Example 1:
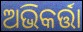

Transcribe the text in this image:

ଅଭିକର୍ତ୍ତା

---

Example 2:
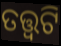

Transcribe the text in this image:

ତତ୍ତ୍ଵଟି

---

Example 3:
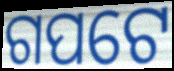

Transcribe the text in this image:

ଗପଟେ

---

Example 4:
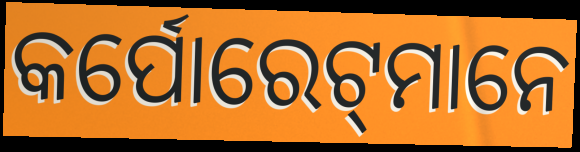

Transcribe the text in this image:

କର୍ପୋରେଟ୍‌ମାନେ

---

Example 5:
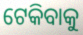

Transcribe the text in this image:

ଟେକିବାକୁ